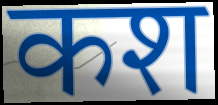
कश